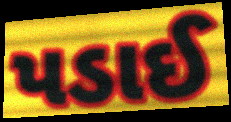
પડાઈ